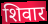
शिवार